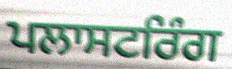
ਪਲਾਸਟਰਿੰਗ